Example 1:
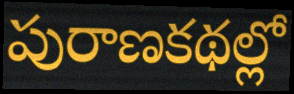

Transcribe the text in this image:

పురాణకథల్లో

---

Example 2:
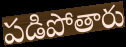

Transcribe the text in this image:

పడిపోతారు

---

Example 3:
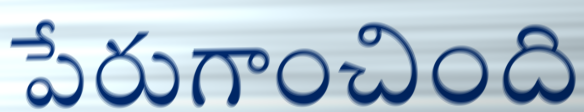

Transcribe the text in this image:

పేరుగాంచింది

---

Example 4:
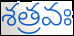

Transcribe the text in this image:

శత్రవః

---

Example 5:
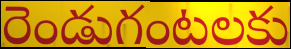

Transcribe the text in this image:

రెండుగంటలకు